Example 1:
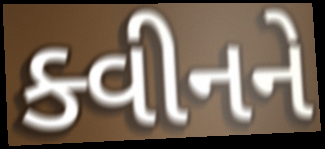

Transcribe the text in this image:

ક્વીનને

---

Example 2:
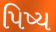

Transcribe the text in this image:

પિષ્ય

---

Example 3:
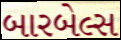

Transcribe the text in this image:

બારબેલ્સ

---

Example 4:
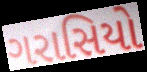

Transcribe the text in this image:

ગરાસિયો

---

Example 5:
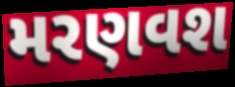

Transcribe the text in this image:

મરણવશ